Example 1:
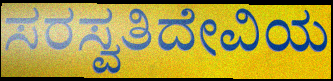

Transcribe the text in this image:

ಸರಸ್ವತಿದೇವಿಯ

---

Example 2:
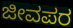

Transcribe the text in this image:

ಜೀವಪರ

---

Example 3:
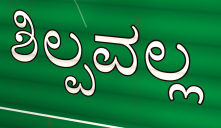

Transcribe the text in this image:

ಶಿಲ್ಪವಲ್ಲ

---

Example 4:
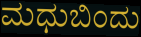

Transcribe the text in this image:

ಮಧುಬಿಂದು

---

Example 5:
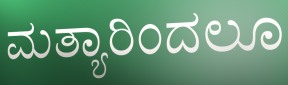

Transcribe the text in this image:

ಮತ್ಯಾರಿಂದಲೂ